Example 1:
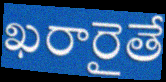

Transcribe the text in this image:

ఖరారైతే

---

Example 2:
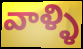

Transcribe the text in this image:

వాళ్ళి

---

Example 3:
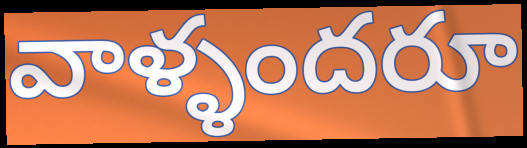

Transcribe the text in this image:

వాళ్ళందరూ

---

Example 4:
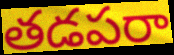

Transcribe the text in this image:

తడపరా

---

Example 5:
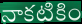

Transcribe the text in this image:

నాకటికిం